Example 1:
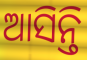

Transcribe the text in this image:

ଆସିନ୍ତି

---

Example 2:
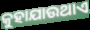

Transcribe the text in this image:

କୁହାଯାଉଥାଏ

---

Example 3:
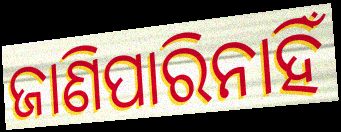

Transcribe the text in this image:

ଜାଣିପାରିନାହିଁ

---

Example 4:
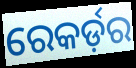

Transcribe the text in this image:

ରେକର୍ଡ଼ର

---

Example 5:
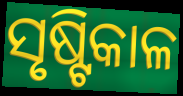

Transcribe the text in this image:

ସୃଷ୍ଟିକାଳ